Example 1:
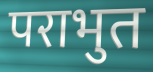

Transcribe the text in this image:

पराभुत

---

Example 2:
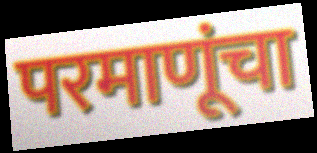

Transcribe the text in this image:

परमाणूंचा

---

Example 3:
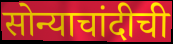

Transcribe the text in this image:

सोन्याचांदीची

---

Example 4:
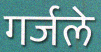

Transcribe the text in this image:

गर्जले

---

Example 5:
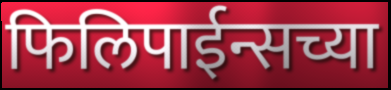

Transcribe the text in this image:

फिलिपाईन्सच्या